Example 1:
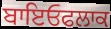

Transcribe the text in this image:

ਬਾਇਓਫਲਾਕ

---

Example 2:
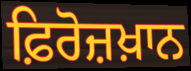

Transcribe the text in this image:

ਫ਼ਿਰੋਜ਼ਖ਼ਾਨ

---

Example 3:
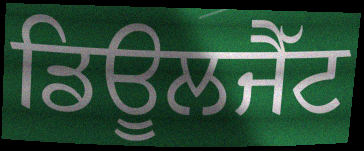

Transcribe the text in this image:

ਡਿਊਲਜੈੱਟ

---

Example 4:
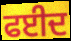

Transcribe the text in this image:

ਫਈਦ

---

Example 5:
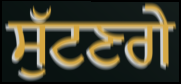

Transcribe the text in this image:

ਸੁੱਟਣਗੇ